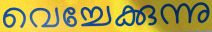
വെച്ചേക്കുന്നു